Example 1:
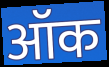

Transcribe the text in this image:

ऑक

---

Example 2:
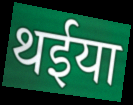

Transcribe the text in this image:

थईया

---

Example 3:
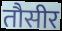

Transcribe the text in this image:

तौसीर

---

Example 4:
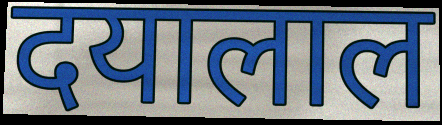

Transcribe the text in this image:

दयालाल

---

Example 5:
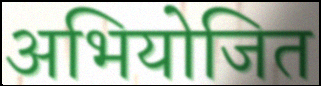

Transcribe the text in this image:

अभियोजित